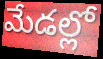
మేడల్లో